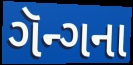
ગૅન્ગના